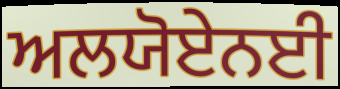
ਅਲਯੋਏਨਈ